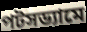
পটসড্যামে